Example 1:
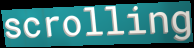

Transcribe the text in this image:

scrolling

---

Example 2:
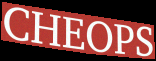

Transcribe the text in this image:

CHEOPS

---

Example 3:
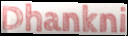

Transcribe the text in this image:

Dhankni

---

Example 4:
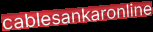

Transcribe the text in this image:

cablesankaronline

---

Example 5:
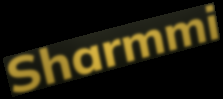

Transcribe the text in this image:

Sharmmi